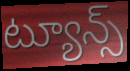
ట్యూన్స్